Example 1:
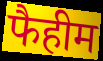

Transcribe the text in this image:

फैहीम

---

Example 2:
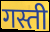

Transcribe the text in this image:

गस्ती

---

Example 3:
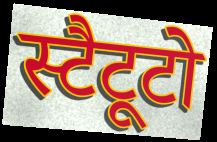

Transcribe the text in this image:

स्टैटूटो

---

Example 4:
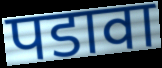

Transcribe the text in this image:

पडावा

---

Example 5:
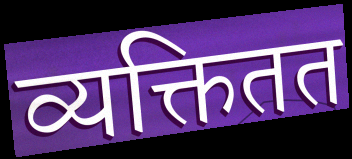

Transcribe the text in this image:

व्यक्तितत